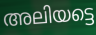
അലിയട്ടെ